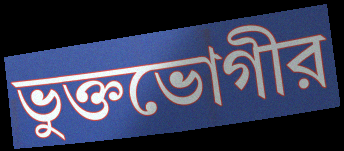
ভুক্তভোগীর